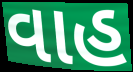
વાહ